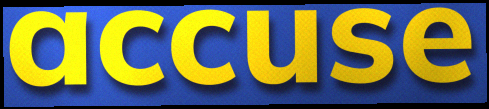
accuse